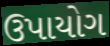
ઉપાયોગ